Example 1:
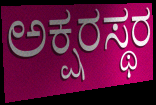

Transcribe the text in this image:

ಅಕ್ಷರಸ್ಥರ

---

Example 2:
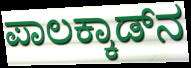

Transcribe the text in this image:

ಪಾಲಕ್ಕಾಡ್‌ನ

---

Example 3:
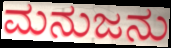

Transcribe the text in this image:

ಮನುಜನು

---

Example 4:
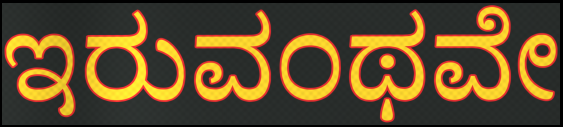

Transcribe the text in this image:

ಇರುವಂಥವೇ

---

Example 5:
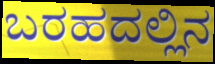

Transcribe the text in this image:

ಬರಹದಲ್ಲಿನ